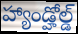
హ్యాండ్హోల్డ్